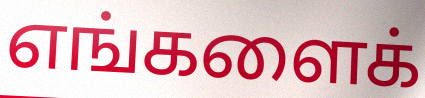
எங்களைக்